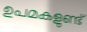
ഉപമകളുണ്ട്